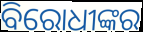
ବିରୋଧୀଙ୍କର